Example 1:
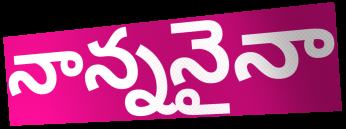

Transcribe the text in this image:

నాన్ననైనా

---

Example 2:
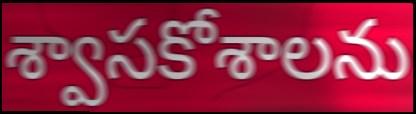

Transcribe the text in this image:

శ్వాసకోశాలను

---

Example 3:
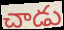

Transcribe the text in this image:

చాడు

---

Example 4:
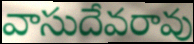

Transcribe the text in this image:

వాసుదేవరావు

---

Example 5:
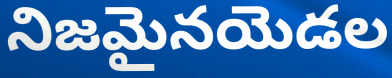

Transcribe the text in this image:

నిజమైనయెడల